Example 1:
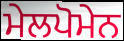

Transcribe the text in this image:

ਮੇਲਪੋਮੇਨ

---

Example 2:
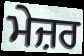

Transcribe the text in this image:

ਮੇਜ਼ਰ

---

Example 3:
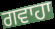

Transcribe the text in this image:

ਗਵਾਹਾ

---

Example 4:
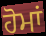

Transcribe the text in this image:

ਹੋਮਾਂ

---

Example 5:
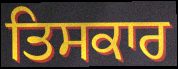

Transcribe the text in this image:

ਤਿਸਕਾਰ